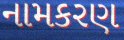
નામકરણ